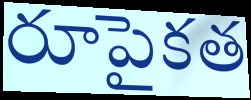
రూపైకత